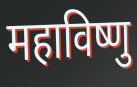
महाविष्णु